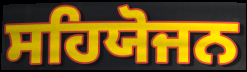
ਸਹਿਯੋਜਨ